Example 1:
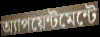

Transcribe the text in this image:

অ্যাপয়েন্টমেন্টে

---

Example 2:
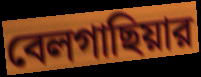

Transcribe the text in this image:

বেলগাছিয়ার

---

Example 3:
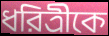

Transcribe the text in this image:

ধরিত্রীকে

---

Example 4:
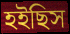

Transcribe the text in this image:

হইছিস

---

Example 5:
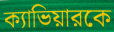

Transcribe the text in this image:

ক্যাভিয়ারকে